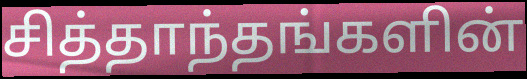
சித்தாந்தங்களின்